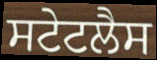
ਸਟੇਟਲੈਸ